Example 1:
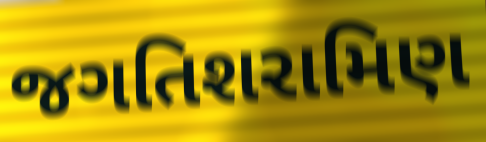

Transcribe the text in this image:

જગતિશરામિણ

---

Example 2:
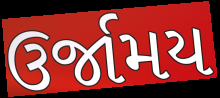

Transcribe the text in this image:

ઉર્જામય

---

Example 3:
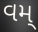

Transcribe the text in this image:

વમ્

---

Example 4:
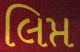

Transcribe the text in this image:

લિપ્ત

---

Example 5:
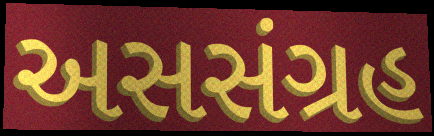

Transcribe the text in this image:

અસસંગ્રહ